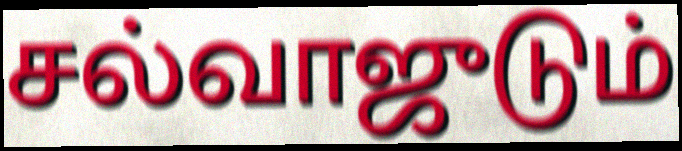
சல்வாஜுடும்